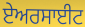
ਏਅਰਸਾਈਟ